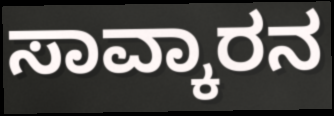
ಸಾವ್ಕಾರನ